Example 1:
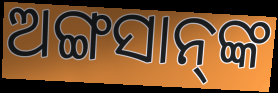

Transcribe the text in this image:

ଅଙ୍ଗସାନ୍‌ଙ୍କ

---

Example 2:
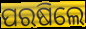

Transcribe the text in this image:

ପରଷିଲେ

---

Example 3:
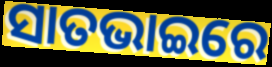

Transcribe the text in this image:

ସାତଭାଇରେ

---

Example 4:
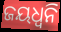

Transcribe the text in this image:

ଜୟଧ୍ୱନି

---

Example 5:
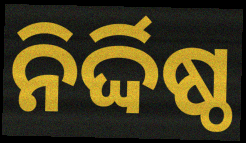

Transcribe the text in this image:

ନିର୍ଦ୍ଦିଷ୍ଠ